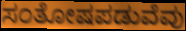
ಸಂತೋಷಪಡುವೆವು